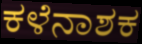
ಕಳೆನಾಶಕ